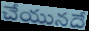
చేయునదే